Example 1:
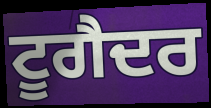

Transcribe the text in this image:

ਟੂਗੈਦਰ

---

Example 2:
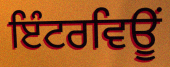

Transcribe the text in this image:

ਇੰਟਰਵਿਊਂ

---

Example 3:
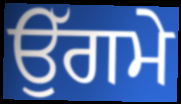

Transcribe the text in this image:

ਉੱਗਮੇ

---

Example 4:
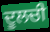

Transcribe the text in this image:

ਦੂਲਚੀ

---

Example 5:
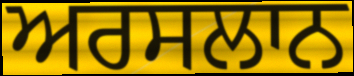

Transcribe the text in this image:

ਅਰਸਲਾਨ